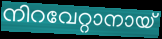
നിറവേറ്റാനായ്